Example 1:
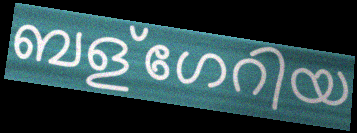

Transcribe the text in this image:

ബള്ഗേറിയ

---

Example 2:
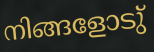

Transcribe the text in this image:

നിങ്ങളോടു്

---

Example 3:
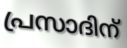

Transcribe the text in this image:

പ്രസാദിന്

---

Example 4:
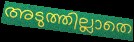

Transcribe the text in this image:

അടുത്തില്ലാതെ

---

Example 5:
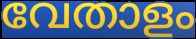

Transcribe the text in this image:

വേതാളം